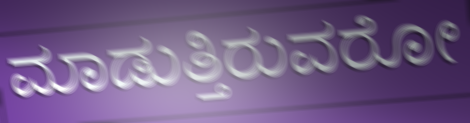
ಮಾಡುತ್ತಿರುವರೋ